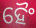
ହୈଂ